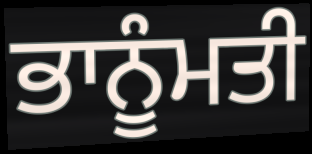
ਭਾਨੂੰਮਤੀ